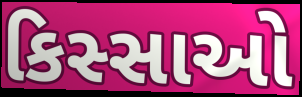
કિસ્સાઓ